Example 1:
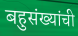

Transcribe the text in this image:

बहुसंख्यांची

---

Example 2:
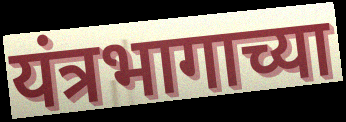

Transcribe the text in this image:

यंत्रभागाच्या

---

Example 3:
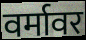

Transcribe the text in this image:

वर्मावर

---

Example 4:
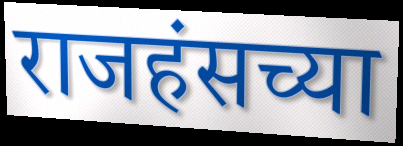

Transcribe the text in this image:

राजहंसच्या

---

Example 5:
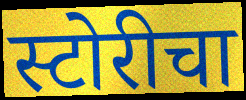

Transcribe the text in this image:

स्टोरीचा